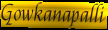
Gowkanapalli